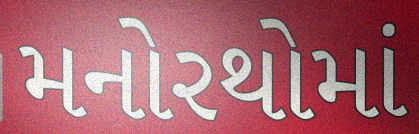
મનોરથોમાં